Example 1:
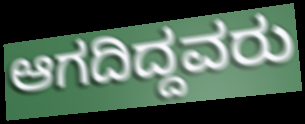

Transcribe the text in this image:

ಆಗದಿದ್ದವರು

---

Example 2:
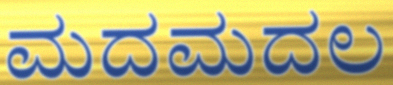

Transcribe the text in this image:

ಮದಮದಲ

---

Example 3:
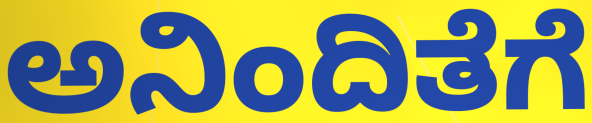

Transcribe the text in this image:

ಅನಿಂದಿತೆಗೆ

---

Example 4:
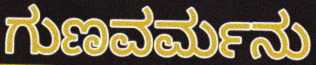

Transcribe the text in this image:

ಗುಣವರ್ಮನು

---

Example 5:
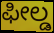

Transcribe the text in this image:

ಫೀಲ್ಡ